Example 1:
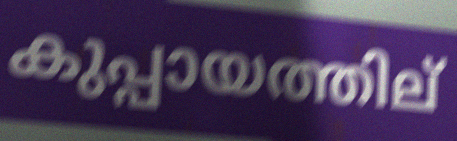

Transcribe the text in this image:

കുപ്പായത്തില്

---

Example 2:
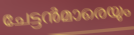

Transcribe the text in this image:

ചേട്ടൻമാരെയും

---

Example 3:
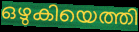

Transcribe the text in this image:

ഒഴുകിയെത്തി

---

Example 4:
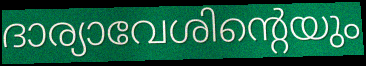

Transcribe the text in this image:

ദാര്യാവേശിന്റെയും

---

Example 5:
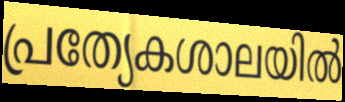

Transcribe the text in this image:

പ്രത്യേകശാലയിൽ